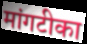
मांगटीका